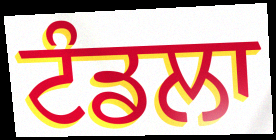
ਟੰਡਲਾ